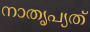
നാതൃപ്യത്